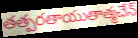
తత్పరతాయుతాత్మచేన్